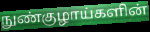
நுண்குழாய்களின்